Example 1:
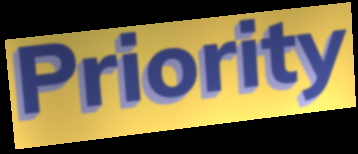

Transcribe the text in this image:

Priority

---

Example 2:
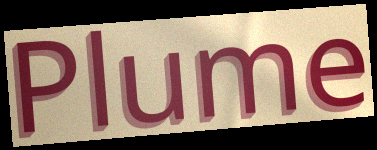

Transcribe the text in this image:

Plume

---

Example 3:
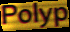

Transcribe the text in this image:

Polyp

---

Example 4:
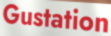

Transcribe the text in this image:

Gustation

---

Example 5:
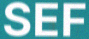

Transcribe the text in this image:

SEF